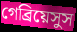
গেব্রিয়েসুস